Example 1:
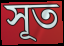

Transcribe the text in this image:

সূত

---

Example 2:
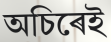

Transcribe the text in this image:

অচিৰেই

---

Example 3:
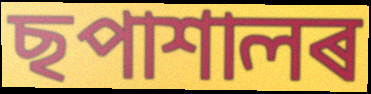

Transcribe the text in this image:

ছপাশালৰ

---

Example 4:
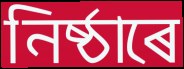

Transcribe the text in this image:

নিষ্ঠাৰে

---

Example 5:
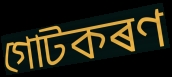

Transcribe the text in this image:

গোটকৰণ